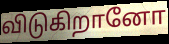
விடுகிறானோ